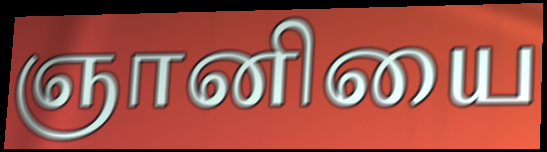
ஞானியை